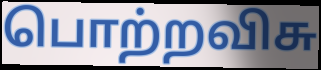
பொற்றவிசு